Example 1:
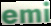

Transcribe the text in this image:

emi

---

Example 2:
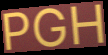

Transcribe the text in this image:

PGH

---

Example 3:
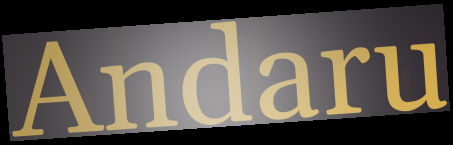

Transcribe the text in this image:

Andaru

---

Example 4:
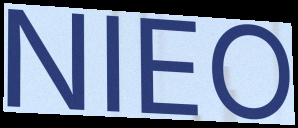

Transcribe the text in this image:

NIEO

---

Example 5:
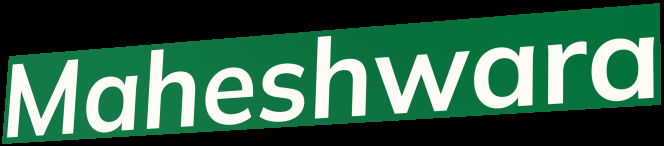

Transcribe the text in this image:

Maheshwara